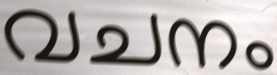
വചനം